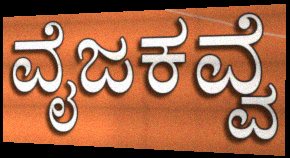
ವೈಜಕವ್ವೆ